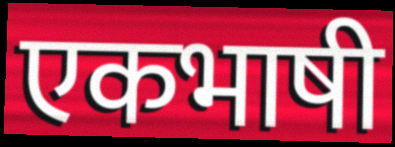
एकभाषी